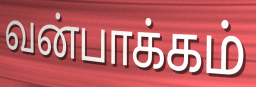
வன்பாக்கம்